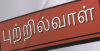
புற்றில்வாள்